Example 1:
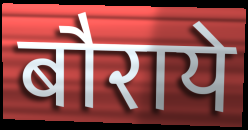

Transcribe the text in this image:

बौराये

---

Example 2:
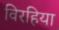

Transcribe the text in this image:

विरहिया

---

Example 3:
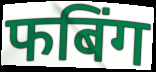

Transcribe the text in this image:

फबिंग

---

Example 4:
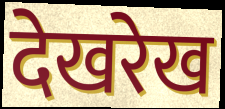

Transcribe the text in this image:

देखरेख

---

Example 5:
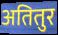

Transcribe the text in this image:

अतितुर